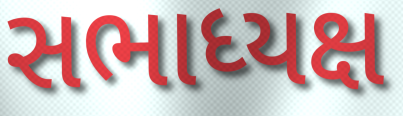
સભાધ્યક્ષ